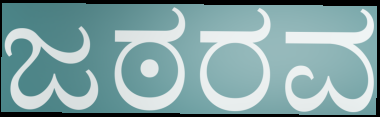
ಜಠರವ